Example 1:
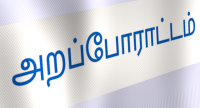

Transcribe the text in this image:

அறப்போராட்டம்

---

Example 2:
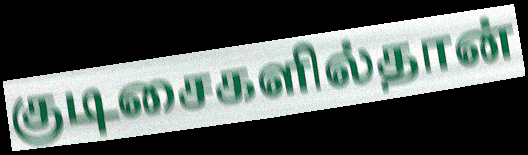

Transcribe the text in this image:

குடிசைகளில்தான்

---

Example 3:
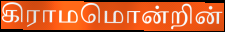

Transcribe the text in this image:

கிராமமொன்றின்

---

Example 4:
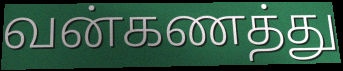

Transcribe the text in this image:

வன்கணத்து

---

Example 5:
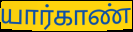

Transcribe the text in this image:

யார்காண்